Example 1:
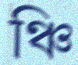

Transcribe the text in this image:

ঞ্চি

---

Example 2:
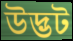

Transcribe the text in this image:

উদ্ভট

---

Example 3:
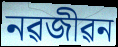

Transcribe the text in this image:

নৱজীৱন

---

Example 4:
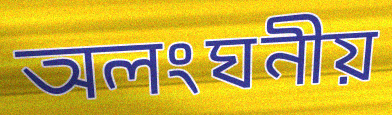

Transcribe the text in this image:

অলংঘনীয়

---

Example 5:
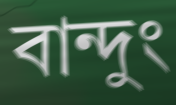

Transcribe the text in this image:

বান্দুং